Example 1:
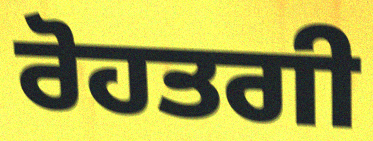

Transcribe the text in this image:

ਰੋਹਤਗੀ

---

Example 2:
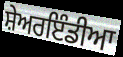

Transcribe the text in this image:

ਸ਼ੇਅਰਇੰਡੀਆ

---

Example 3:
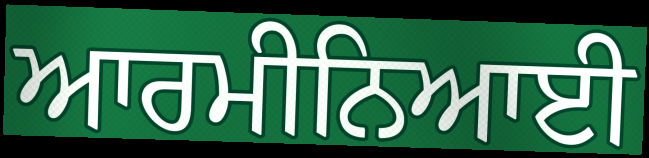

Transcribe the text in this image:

ਆਰਮੀਨਿਆਈ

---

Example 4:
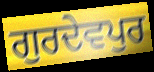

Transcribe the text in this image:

ਗੁਰਦੇਵਪੁਰ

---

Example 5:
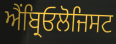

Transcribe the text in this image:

ਐਂਬ੍ਰਿਓਲੋਜਿਸਟ